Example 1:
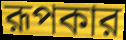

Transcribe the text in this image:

রূপকার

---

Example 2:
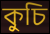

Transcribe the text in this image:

কুচি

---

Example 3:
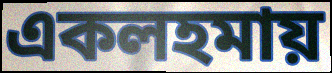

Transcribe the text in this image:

একলহমায়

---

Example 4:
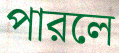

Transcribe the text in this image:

পারলে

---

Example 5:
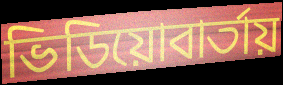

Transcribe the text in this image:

ভিডিয়োবার্তায়